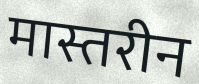
मास्तरीन